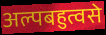
अल्पबहुत्वसे